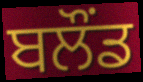
ਬਲੌਂਡ